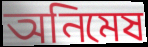
অনিমেষ